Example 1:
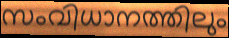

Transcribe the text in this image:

സംവിധാനത്തിലും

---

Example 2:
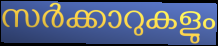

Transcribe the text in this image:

സർക്കാറുകളും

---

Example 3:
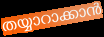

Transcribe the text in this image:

തയ്യാറാക്കാൻ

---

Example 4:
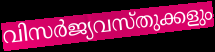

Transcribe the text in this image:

വിസർജ്യവസ്തുക്കളും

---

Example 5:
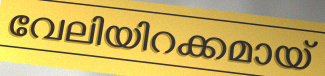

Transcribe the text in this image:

വേലിയിറക്കമായ്